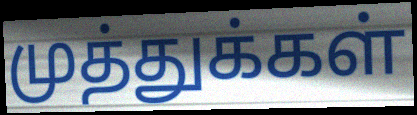
முத்துக்கள்